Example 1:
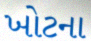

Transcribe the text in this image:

ખોટના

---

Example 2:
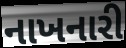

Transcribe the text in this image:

નાખનારી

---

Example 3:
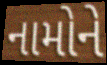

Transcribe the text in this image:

નામોને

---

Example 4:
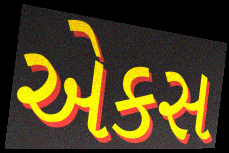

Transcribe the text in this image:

એકસ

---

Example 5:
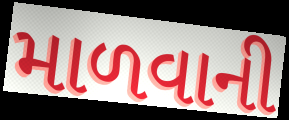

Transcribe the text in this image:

માળવાની